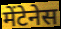
मेंटेनेस